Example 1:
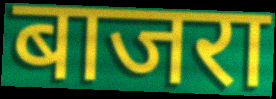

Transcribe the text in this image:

बाजरा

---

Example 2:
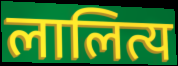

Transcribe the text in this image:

लालित्य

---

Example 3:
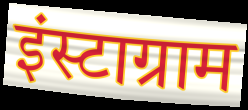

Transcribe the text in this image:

इंस्टाग्राम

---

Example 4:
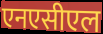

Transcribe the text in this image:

एनएसीएल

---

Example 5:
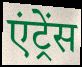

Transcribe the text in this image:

एंट्रेंस